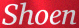
Shoen